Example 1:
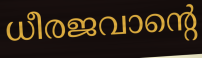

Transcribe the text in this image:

ധീരജവാന്റെ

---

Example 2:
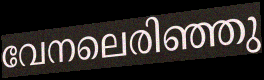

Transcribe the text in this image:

വേനലെരിഞ്ഞു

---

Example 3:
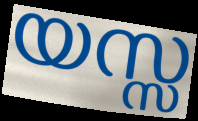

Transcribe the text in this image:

യസ്സ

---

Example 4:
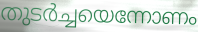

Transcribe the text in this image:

തുടർച്ചയെന്നോണം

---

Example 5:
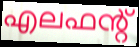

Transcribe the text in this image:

എലഫന്റ്